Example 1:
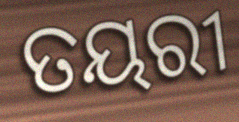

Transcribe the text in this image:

ତୟରୀ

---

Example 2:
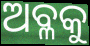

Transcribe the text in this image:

ଅବ୍ଳକୁ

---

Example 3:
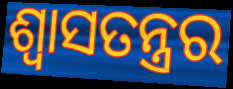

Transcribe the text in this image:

ଶ୍ଵାସତନ୍ତ୍ରର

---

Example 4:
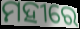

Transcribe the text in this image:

ମହୀରେ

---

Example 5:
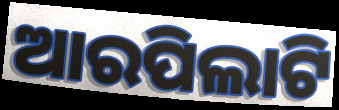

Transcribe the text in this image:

ଆରପିଲାଟି